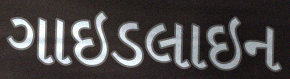
ગાઇડલાઇન